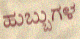
ಹುಬ್ಬುಗಳ